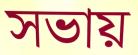
সভায়